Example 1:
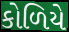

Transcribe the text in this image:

કોળિયે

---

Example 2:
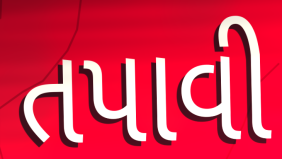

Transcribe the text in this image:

તપાવી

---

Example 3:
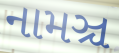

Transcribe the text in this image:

નામઞ્ચ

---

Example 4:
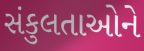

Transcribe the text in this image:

સંકુલતાઓને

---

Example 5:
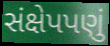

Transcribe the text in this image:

સંક્ષેપપણું